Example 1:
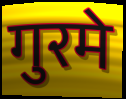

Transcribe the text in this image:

गुरमे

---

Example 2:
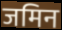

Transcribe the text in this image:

जमिन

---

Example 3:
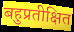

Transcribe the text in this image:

बहुप्रतीक्षित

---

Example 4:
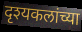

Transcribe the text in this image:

दृश्यकलांच्या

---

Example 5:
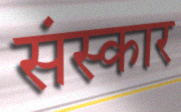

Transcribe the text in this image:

संस्‍कार